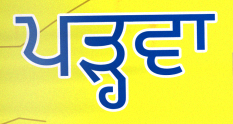
ਪੜ੍ਹਵਾ